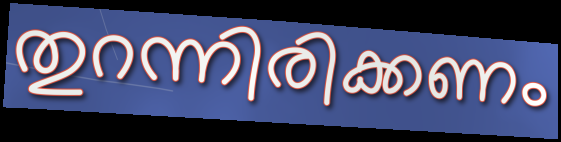
തുറന്നിരിക്കണം